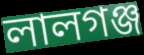
লালগঞ্জ